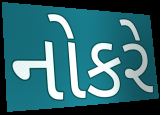
નોકરે